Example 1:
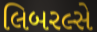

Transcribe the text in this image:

લિબરલ્સે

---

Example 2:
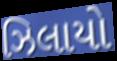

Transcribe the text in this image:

ઝિલાયો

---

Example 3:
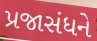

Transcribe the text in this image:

પ્રજાસંધને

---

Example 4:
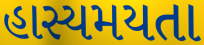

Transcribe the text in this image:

હાસ્યમયતા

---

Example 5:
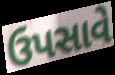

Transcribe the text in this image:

ઉપસાવે